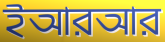
ইআরআর